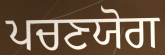
ਪਚਣਯੋਗ